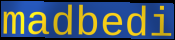
madbedi